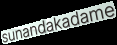
sunandakadame